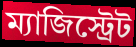
ম্যাজিস্ট্রেট